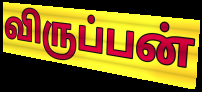
விருப்பன்